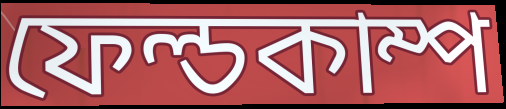
ফেল্ডকাম্প